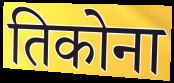
तिकोना